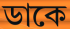
ডাকে